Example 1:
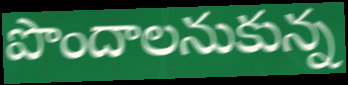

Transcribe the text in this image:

పొందాలనుకున్న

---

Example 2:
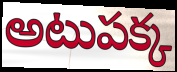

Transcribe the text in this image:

అటుపక్క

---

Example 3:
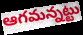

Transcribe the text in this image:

ఆగమన్నట్టు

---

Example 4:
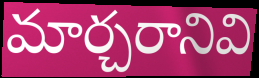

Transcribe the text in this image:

మార్చరానివి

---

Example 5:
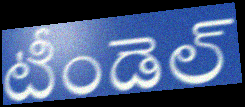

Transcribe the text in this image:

టీండెల్